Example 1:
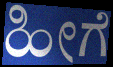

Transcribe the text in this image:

ಹೀಗೆ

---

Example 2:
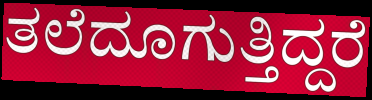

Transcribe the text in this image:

ತಲೆದೂಗುತ್ತಿದ್ದರೆ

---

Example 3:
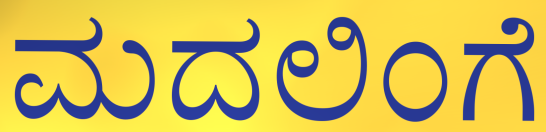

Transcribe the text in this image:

ಮದಲಿಂಗೆ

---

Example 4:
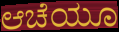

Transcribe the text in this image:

ಆಚೆಯೂ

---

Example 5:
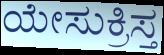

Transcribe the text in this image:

ಯೇಸುಕ್ರಿಸ್ತ